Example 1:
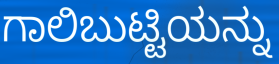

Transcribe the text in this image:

ಗಾಲಿಬುಟ್ಟಿಯನ್ನು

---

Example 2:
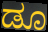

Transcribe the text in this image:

ಡೂ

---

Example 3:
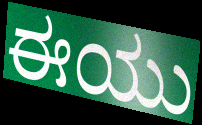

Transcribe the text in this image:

ಈಯು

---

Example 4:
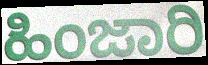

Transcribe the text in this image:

ಹಿಂಜಾರಿ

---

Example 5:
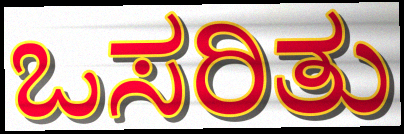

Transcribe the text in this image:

ಒಸರಿತು